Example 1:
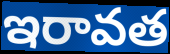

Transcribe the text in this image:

ఇరావత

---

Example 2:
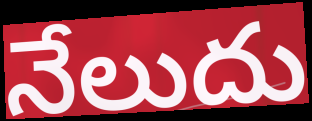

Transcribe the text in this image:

నేలుదు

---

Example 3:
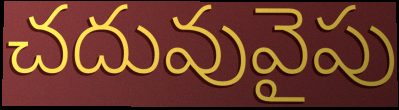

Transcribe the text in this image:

చదువువైపు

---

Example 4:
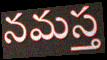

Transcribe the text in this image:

నమస్త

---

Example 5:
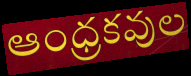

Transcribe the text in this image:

ఆంధ్రకవుల